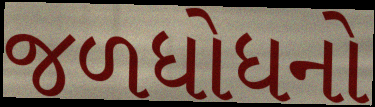
જળધોધનો